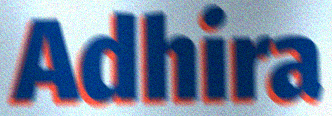
Adhira